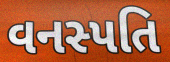
વનસ્પતિ